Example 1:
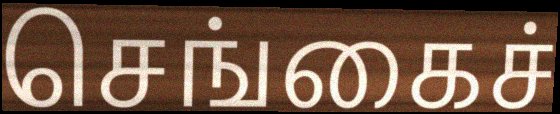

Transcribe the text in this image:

செங்கைச்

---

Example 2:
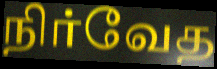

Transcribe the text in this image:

நிர்வேத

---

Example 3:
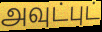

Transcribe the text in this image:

அவுட்புட்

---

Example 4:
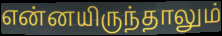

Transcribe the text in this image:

என்னயிருந்தாலும்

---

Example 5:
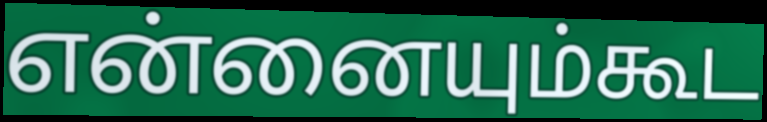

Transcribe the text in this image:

என்னையும்கூட